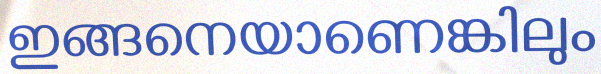
ഇങ്ങനെയാണെങ്കിലും